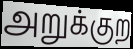
அறுக்குற